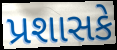
પ્રશાસકે